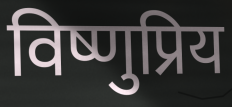
विष्णुप्रिय